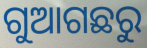
ଗୁଆଗଛରୁ